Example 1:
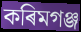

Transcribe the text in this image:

কৰিমগঞ্জ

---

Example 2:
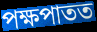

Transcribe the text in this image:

পক্ষপাতত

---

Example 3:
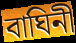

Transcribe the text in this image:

বাঘিনী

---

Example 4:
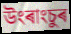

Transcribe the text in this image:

উংৰাংচুৰ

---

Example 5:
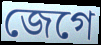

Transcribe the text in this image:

জেগে